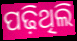
ପଢ଼ିଥିଲି